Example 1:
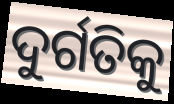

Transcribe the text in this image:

ଦୁର୍ଗତିକୁ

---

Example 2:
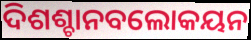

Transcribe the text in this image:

ଦିଶଶ୍ଚାନବଲୋକୟନ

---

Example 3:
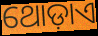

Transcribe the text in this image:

ଥୋଡ଼ାଏ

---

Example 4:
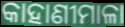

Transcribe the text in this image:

କାହାଣୀମାଳା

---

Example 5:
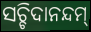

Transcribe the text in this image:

ସଚ୍ଚିଦାନନ୍ଦମ୍